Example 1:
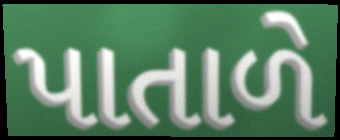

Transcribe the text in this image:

પાતાળે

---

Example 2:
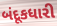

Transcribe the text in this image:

બંદૂકધારી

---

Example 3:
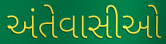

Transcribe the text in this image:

અંતેવાસીઓ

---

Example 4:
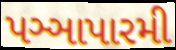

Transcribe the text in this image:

પઞ્ઞાપારમી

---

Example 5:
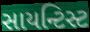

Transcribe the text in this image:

સાયન્ટિસ્ટ